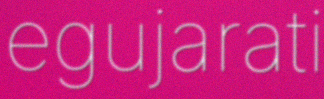
egujarati